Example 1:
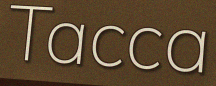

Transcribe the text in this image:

Tacca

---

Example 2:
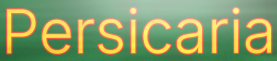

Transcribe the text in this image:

Persicaria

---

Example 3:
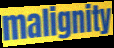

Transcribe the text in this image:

malignity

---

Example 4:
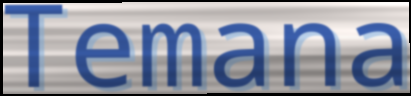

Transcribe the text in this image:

Temana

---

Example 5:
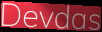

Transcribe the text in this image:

Devdas